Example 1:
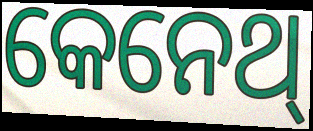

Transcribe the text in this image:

କେନେଥ୍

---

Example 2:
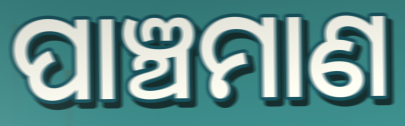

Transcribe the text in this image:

ପାଞ୍ଚମାଣ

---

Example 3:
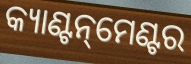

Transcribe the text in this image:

କ୍ୟାଣ୍ଟନ୍‌ମେଣ୍ଟର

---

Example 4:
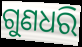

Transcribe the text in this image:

ଗୁଣଧରି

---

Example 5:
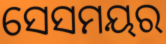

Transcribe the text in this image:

ସେସମୟର